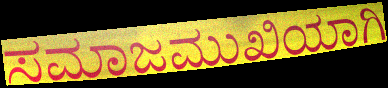
ಸಮಾಜಮುಖಿಯಾಗಿ